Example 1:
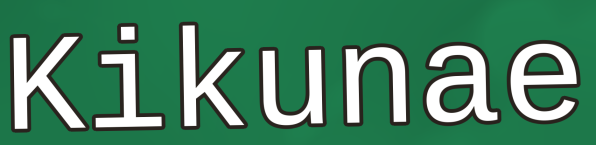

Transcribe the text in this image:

Kikunae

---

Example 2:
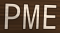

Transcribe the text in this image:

PME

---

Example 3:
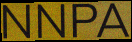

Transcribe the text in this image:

NNPA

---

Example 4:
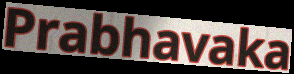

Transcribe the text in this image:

Prabhavaka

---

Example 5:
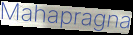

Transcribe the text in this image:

Mahapragna